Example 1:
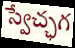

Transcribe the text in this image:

స్వేచ్ఛగ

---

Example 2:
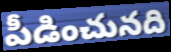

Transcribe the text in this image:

పీడించునది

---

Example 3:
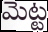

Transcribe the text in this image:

మెట్ట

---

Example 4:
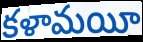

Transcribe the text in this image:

కళామయీ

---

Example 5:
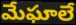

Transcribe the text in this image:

మేఘాలే